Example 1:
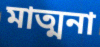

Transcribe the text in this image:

মাত্মনা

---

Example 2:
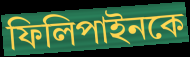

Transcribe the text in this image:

ফিলিপাইনকে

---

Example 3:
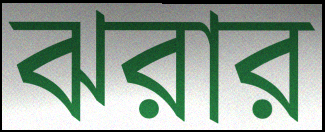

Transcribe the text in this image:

ঝরার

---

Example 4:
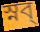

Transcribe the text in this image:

স্নব্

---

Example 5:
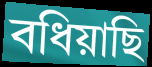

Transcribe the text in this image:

বধিয়াছি